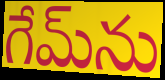
గేమ్‌ను